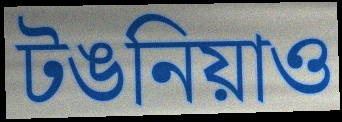
টঙনিয়াও